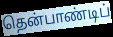
தென்பாண்டிப்